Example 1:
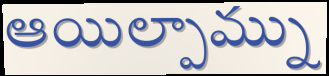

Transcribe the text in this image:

ఆయిల్పామ్ను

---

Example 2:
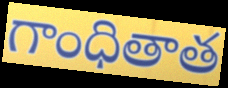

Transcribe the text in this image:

గాంధితాత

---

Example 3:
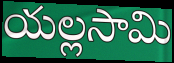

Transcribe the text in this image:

యల్లసామి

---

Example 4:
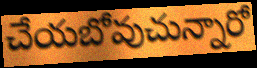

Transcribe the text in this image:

చేయబోవుచున్నారో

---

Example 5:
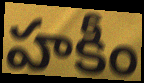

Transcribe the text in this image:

హకీం